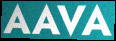
AAVA